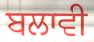
ਬਲਾਵੀ